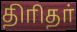
திரிதர்